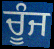
ਚੂੰਜ